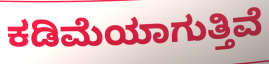
ಕಡಿಮೆಯಾಗುತ್ತಿವೆ